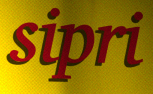
sipri